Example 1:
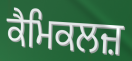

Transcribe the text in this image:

ਕੈਮਿਕਲਜ਼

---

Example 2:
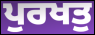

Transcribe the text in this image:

ਪੁਰਖਤੁ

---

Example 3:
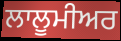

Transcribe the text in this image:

ਲਾਲੂਮੀਅਰ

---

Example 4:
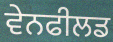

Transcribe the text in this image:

ਵੇਨਫੀਲਡ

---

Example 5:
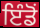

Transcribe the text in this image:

ਇੰਡੋਂ